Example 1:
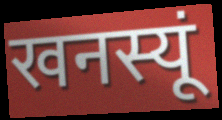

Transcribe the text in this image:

खनस्यूं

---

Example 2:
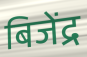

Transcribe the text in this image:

बिजेंद्र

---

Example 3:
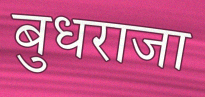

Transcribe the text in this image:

बुधराजा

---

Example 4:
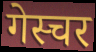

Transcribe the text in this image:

गेस्चर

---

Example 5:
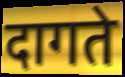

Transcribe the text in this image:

दागते